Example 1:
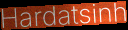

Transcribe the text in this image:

Hardatsinh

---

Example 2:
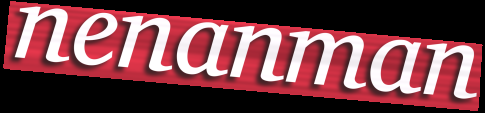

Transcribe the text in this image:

nenanman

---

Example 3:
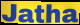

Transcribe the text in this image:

Jatha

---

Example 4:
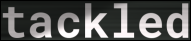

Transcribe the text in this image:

tackled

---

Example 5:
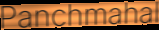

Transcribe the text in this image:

Panchmahal